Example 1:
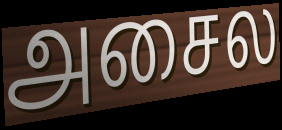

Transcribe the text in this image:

அசைல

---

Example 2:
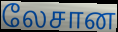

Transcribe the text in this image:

லேசான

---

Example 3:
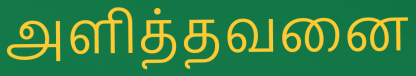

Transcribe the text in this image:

அளித்தவனை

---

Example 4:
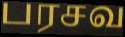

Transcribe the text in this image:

பரசவ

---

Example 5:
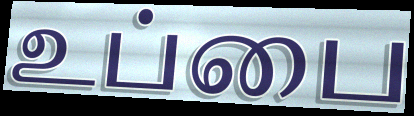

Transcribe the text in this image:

உப்பை